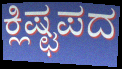
ಕ್ಲಿಷ್ಟಪದ